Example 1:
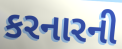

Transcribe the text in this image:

કરનારની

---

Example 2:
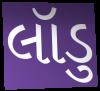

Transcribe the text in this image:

લૉડુ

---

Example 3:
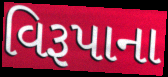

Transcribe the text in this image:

વિરૂપાના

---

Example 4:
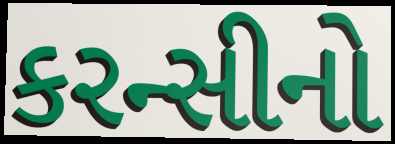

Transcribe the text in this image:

કરન્સીનો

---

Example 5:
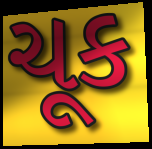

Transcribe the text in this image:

ચૂક